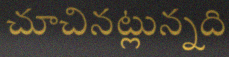
చూచినట్లున్నది